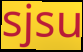
sjsu